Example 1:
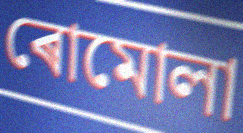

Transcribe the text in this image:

ৰোমোলা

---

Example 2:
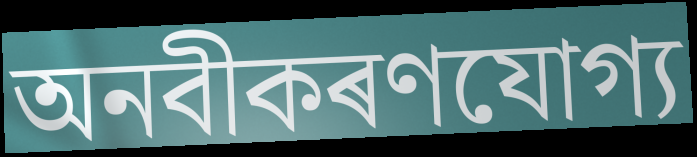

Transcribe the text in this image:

অনবীকৰণযোগ্য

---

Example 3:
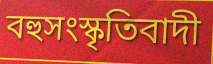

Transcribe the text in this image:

বহুসংস্কৃতিবাদী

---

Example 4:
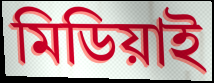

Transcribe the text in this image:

মিডিয়াই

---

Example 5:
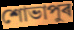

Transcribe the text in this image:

শোভাপুৰ